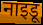
नाइडू